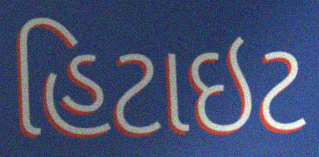
હિટાઇટ